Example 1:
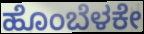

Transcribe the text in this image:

ಹೊಂಬೆಳಕೇ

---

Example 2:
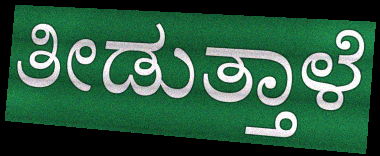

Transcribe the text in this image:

ತೀಡುತ್ತಾಳೆ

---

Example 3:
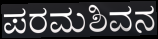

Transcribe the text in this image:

ಪರಮಶಿವನ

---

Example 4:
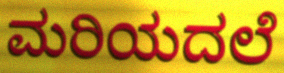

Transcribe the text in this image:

ಮರಿಯದಲೆ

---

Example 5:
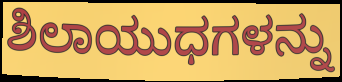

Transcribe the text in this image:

ಶಿಲಾಯುಧಗಳನ್ನು